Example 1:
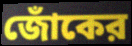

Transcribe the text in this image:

জোঁকের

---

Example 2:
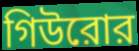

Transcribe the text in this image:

গিউরোর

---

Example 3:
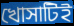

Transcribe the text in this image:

খোসাটিই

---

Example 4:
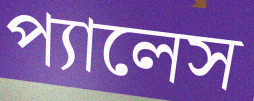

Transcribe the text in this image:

প্যালেস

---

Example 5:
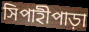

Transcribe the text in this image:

সিপাহীপাড়া